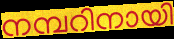
നമ്പറിനായി